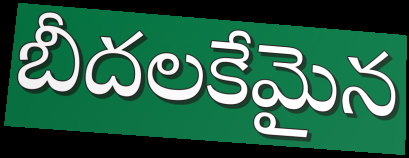
బీదలకేమైన